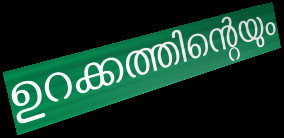
ഉറക്കത്തിന്റെയും